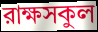
রাক্ষসকুল